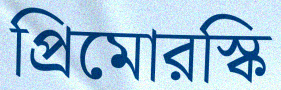
প্রিমোরস্কি